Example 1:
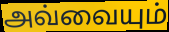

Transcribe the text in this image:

அவ்வையும்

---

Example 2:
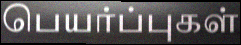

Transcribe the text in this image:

பெயர்ப்புகள்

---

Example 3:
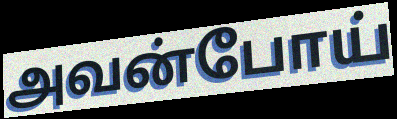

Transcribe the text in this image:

அவன்போய்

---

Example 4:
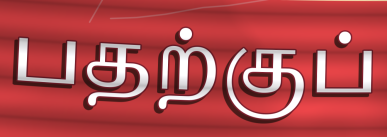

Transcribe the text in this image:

பதற்குப்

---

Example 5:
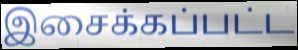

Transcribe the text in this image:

இசைக்கப்பட்ட